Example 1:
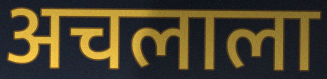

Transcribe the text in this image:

अचलाला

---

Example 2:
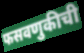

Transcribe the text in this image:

फसवणुकीची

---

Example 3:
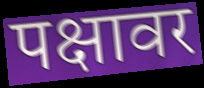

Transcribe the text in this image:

पक्षावर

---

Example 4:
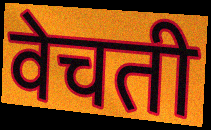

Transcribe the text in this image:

वेचती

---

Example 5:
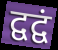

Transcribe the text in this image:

द्वद्वं